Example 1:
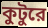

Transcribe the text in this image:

কুটুরে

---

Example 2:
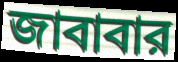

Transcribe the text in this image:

জাবাবার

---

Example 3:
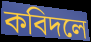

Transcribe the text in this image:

কবিদলে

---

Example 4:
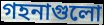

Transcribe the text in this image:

গহনাগুলো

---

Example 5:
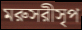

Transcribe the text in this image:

মরুসরীসৃপ